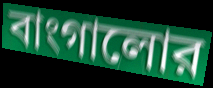
বাংগালোর